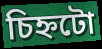
চিহ্নটো